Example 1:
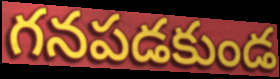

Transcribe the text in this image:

గనపడకుండ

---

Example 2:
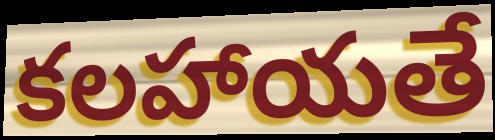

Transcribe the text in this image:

కలహాయతే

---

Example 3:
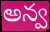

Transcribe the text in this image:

అన్వ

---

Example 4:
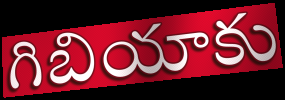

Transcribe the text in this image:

గిబియాకు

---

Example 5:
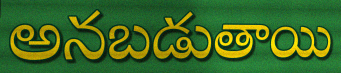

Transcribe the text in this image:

అనబడుతాయి